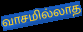
வாசமில்லாத